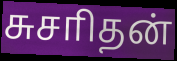
சுசரிதன்